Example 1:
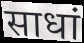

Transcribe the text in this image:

साधां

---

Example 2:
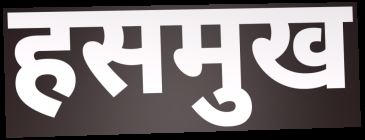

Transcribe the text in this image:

हसमुख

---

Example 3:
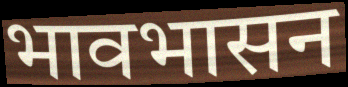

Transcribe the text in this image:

भावभासन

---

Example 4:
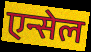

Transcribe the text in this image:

एन्सेल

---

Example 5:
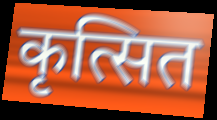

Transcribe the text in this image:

कृत्सित